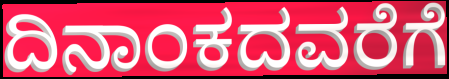
ದಿನಾಂಕದವರೆಗೆ